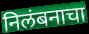
निलंबनाचा